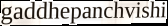
gaddhepanchvishi